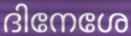
ദിനേശേ